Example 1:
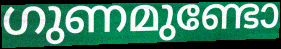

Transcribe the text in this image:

ഗുണമുണ്ടോ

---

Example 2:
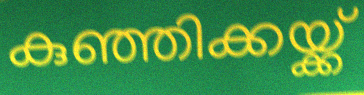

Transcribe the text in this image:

കുഞ്ഞിക്കയ്ക്ക്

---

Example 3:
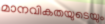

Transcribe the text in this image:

മാനവികതയുടെയും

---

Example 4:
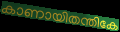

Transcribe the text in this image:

കാണായിതന്തികേ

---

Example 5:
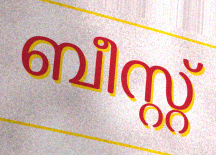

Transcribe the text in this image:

ബീസ്റ്റ്